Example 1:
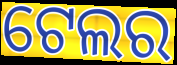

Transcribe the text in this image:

ଟେଲର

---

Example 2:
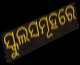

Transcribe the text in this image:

ସ୍କୁଲସମୂହରେ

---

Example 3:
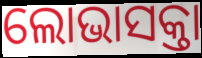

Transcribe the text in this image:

ଲୋଭାସକ୍ତା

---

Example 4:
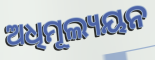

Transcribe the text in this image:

ଅଧିମୂଲ୍ୟୟନ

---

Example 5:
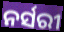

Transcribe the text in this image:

ନର୍ସରୀ